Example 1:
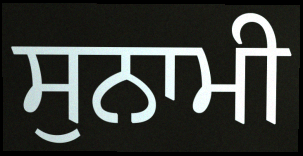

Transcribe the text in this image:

ਸੁਨਾਮੀ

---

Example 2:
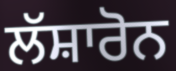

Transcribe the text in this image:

ਲੱਸ਼ਾਰੋਨ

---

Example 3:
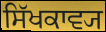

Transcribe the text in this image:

ਸਿੱਖਕਾਵ੍ਯ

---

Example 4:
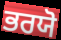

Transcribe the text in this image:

ਭਰਯੋ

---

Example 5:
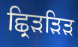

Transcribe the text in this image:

ਛ੍ਰਿੜੜਿੜ